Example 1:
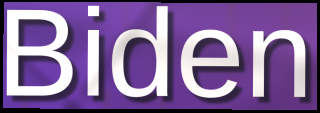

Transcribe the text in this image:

Biden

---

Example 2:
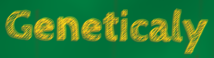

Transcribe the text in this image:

Geneticaly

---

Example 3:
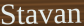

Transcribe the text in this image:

Stavan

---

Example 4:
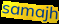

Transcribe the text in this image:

samajh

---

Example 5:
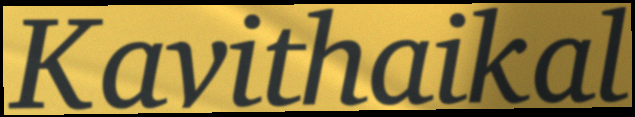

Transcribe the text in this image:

Kavithaikal